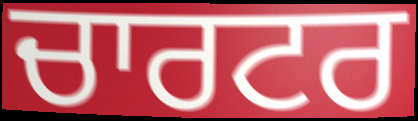
ਚਾਰਟਰ